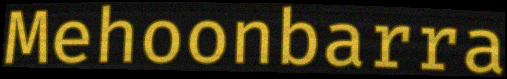
Mehoonbarra